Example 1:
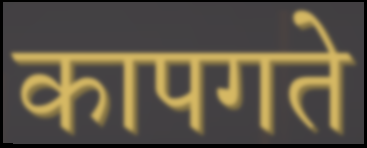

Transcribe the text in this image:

कापगते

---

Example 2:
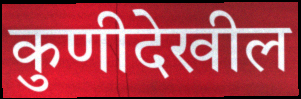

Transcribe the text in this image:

कुणीदेखील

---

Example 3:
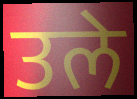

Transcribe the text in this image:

उले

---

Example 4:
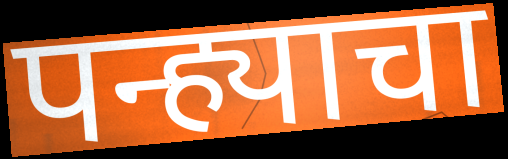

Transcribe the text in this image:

पन्ह्याचा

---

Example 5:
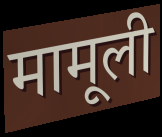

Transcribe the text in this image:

मामूली